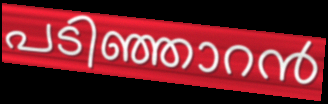
പടിഞ്ഞാറൻ